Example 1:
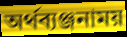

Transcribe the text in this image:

অর্থব্যঞ্জনাময়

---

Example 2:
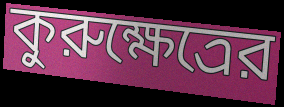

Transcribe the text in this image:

কুরুক্ষেত্রের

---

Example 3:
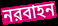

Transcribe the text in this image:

নরবাহন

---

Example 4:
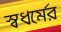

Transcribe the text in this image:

স্বধর্মের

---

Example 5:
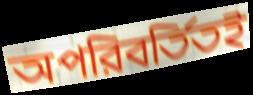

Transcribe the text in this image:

অপরিবর্তিতই